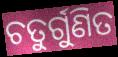
ଚତୁର୍ଗୁଣିତ